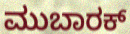
ಮುಬಾರಕ್